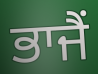
ਭਾਜੈਂ